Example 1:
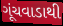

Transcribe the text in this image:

ગૂંચવાડાથી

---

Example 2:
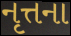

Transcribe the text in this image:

નૃત્તના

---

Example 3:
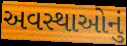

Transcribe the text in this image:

અવસ્થાઓનું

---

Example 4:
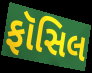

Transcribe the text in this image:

ફૉસિલ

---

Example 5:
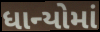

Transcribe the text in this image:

ધાન્યોમાં